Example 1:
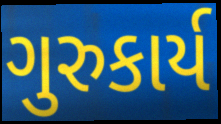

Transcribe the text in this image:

ગુરુકાર્ય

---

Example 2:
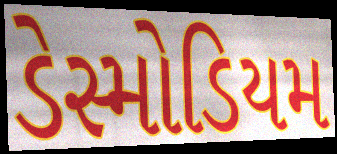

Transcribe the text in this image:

ડેસ્મોડિયમ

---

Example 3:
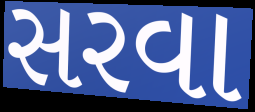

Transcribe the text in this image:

સરવા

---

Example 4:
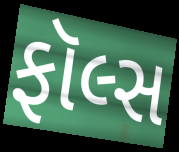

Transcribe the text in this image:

ફૉલ્સ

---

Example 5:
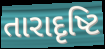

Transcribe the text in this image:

તારાદૃષ્ટિ